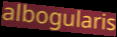
albogularis